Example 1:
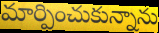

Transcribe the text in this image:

మార్పించుకున్నాను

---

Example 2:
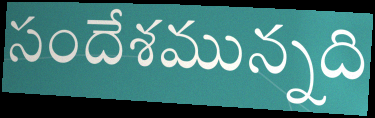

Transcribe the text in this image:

సందేశమున్నది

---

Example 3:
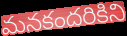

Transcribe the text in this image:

మనకందరికిని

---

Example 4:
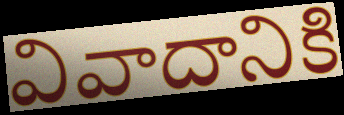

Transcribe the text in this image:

వివాదానికి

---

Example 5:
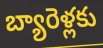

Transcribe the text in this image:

బ్యారెళ్లకు